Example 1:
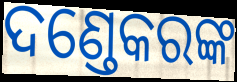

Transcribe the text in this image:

ଦଣ୍ଡେକରଙ୍କ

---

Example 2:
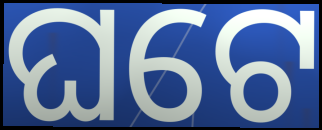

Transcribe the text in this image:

ଘଟେ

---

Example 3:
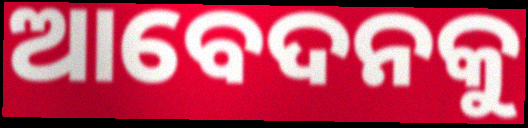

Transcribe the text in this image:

ଆବେଦନକୁ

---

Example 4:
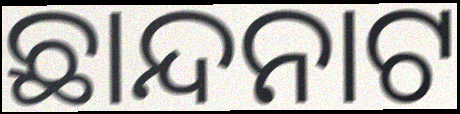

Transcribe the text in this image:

ଛାନ୍ଦନାଟ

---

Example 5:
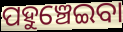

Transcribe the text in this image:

ପହୁଞ୍ଚେଇବା